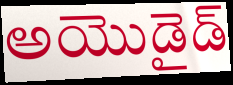
అయొడైడ్